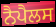
ਨੈਪੈਲਸ